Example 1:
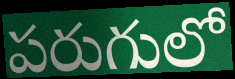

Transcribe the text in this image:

పరుగులో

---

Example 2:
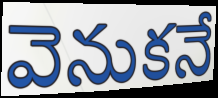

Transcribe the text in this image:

వెనుకనే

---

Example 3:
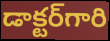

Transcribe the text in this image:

డాక్టర్‌గారి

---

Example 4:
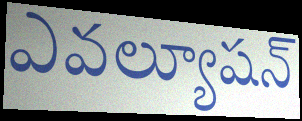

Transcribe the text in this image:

ఎవల్యూషన్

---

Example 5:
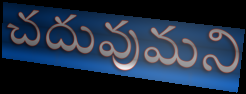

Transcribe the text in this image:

చదువుమని